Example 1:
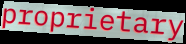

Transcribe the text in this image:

proprietary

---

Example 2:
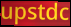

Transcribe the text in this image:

upstdc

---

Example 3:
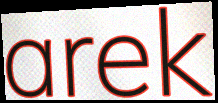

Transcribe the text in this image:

arek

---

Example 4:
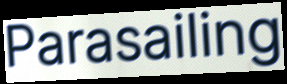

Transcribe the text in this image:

Parasailing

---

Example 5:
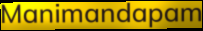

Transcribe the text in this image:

Manimandapam